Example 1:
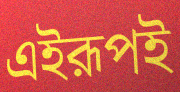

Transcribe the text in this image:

এইরূপই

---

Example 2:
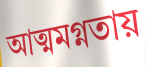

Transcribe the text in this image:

আত্মমগ্নতায়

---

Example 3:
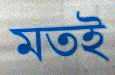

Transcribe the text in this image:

মতই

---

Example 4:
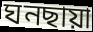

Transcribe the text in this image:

ঘনছায়া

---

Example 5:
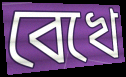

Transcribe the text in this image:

বেখে